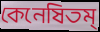
কেনেষিতম্